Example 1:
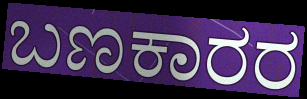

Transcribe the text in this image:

ಬಣಕಾರರ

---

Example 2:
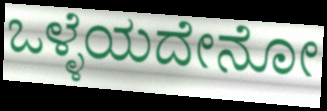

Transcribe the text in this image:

ಒಳ್ಳೆಯದೇನೋ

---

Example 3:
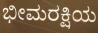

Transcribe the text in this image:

ಭೀಮರಕ್ಷಿಯ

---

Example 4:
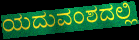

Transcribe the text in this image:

ಯದುವಂಶದಲ್ಲಿ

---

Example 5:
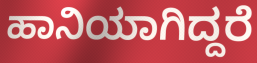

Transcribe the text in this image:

ಹಾನಿಯಾಗಿದ್ದರೆ